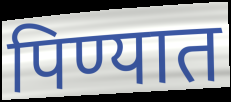
पिण्यात